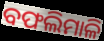
ବଫଲିମାଳି